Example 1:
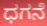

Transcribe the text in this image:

ಧಗನೆ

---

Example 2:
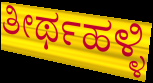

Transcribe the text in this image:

ತೀರ್ಥಹಳ್ಳಿ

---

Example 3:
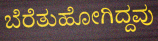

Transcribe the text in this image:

ಬೆರೆತುಹೋಗಿದ್ದವು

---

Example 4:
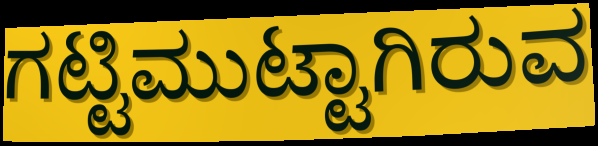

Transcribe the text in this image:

ಗಟ್ಟಿಮುಟ್ಟಾಗಿರುವ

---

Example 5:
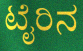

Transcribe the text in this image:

ಟೈರಿನ